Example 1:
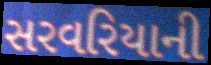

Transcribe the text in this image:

સરવરિયાની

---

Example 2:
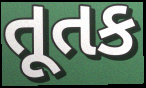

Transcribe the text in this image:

તૂતક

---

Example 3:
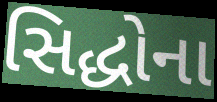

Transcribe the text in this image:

સિદ્ધોના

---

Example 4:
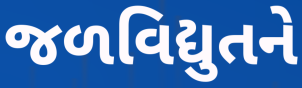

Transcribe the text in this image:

જળવિદ્યુતને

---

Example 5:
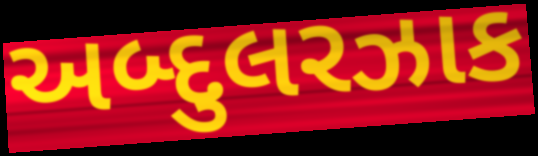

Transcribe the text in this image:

અબ્દુલરઝાક